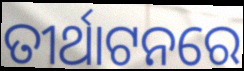
ତୀର୍ଥାଟନରେ